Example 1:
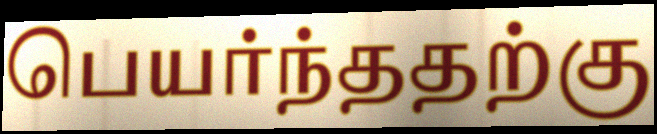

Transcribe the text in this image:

பெயர்ந்ததற்கு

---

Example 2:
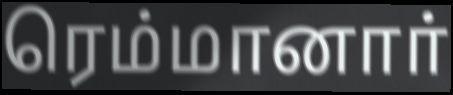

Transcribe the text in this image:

ரெம்மானார்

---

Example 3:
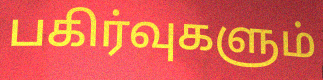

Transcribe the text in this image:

பகிர்வுகளும்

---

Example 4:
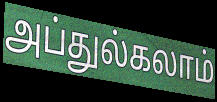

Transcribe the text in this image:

அப்துல்கலாம்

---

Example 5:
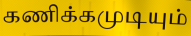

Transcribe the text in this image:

கணிக்கமுடியும்